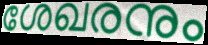
ശേഖരനും